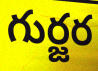
గుర్జర